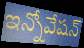
ఇన్నోవేషన్